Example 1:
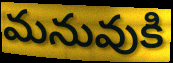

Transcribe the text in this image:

మనువుకి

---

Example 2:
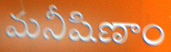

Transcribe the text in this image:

మనీషిణాం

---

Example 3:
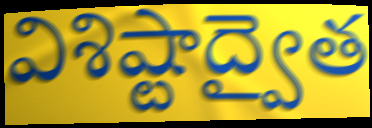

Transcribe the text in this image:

విశిష్టాద్వైత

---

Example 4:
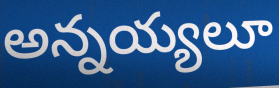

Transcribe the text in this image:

అన్నయ్యలూ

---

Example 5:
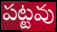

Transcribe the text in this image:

పట్టవు